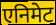
एनिमेट